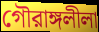
গৌরাঙ্গলীলা